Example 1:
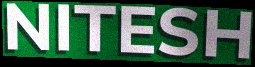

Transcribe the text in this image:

NITESH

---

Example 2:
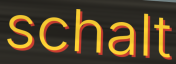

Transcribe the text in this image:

schalt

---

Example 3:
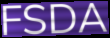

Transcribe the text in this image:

FSDA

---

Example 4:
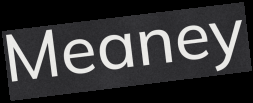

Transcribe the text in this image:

Meaney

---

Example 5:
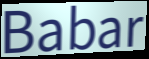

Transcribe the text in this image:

Babar